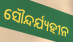
ସୌନ୍ଦର୍ଯ୍ୟହୀନ